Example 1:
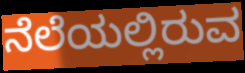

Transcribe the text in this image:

ನೆಲೆಯಲ್ಲಿರುವ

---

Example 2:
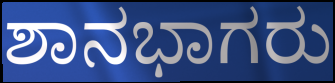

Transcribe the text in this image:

ಶಾನಭಾಗರು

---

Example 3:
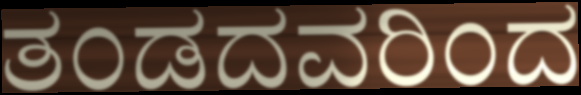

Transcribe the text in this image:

ತಂಡದವರಿಂದ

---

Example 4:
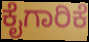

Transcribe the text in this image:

ಕೈಗಾರಿಕೆ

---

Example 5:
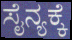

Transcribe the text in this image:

ಸೈನ್ಯಕ್ಕೆ